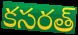
కసరత్